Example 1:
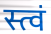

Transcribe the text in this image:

स्त्वं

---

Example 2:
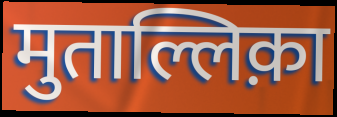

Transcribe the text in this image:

मुताल्लिक़ा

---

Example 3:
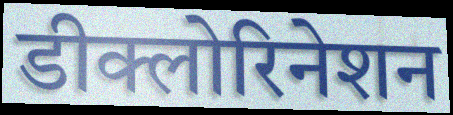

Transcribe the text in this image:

डीक्लोरिनेशन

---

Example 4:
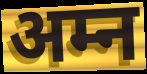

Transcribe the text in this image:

अम्न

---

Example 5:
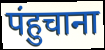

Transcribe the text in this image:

पंहुचाना